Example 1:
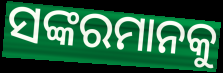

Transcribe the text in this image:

ସଙ୍କରମାନକୁ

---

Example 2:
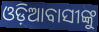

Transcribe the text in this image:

ଓଡ଼ିଆବାସୀଙ୍କୁ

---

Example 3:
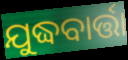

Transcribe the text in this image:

ଯୁଦ୍ଧବାର୍ତ୍ତା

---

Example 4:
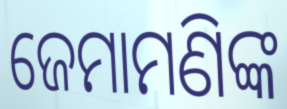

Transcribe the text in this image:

ଜେମାମଣିଙ୍କ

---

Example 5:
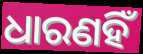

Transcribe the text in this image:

ଧାରଣହିଁ